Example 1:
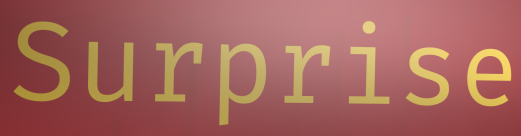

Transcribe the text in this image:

Surprise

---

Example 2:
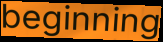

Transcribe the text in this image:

beginning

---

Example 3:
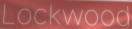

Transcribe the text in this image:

Lockwood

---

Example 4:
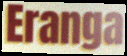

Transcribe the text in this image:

Eranga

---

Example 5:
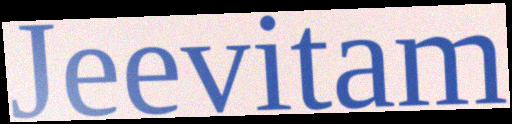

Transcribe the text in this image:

Jeevitam